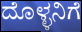
ದೊಳ್ಳನಿಗೆ